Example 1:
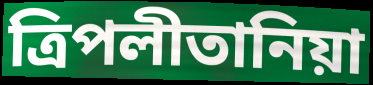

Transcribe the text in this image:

ত্রিপলীতানিয়া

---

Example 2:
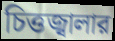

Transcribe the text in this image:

চিত্তজ্বালার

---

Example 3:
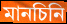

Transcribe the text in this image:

মানচিনি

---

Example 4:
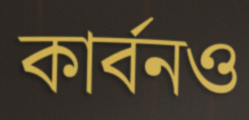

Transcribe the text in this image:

কার্বনও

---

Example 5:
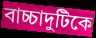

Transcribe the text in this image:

বাচ্চাদুটিকে